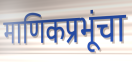
माणिकप्रभूंचा